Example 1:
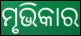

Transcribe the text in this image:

ମୃଭିକାର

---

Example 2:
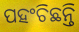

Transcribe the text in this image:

ପହଂଚିଛନ୍ତି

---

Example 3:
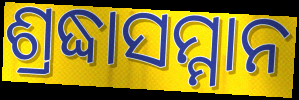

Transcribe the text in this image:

ଶ୍ରଦ୍ଧାସମ୍ମାନ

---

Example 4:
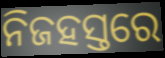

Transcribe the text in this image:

ନିଜହସ୍ତରେ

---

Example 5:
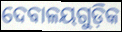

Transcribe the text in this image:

ଦେବାଳୟଗୁଡ଼ିକ